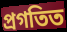
প্ৰগতিত